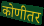
कोणीतर